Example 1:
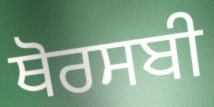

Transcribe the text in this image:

ਥੋਰਸਬੀ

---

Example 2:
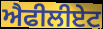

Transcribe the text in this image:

ਐਫੀਲੀਏਟ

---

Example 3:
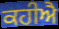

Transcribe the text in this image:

ਕਹੀਐ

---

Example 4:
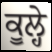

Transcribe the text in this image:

ਕੂਲ੍ਹੇ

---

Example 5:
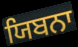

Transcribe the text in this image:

ਯਿਬਨਾ